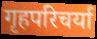
गृहपरिचर्या